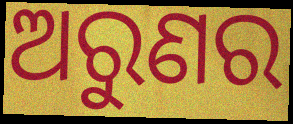
ଅରୁଣର